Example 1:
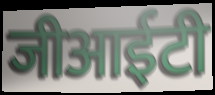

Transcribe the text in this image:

जीआईटी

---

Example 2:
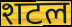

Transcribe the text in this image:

शटल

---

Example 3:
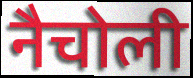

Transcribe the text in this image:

नैचोली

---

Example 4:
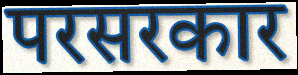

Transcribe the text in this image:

परसरकार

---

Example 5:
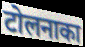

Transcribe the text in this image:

टोलनाका